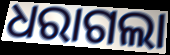
ଧରାଗଲା